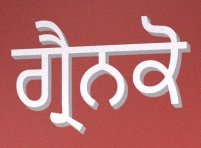
ਗ੍ਰੈਨਕੋ